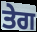
ਤੇਗ